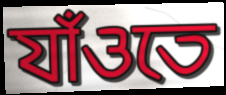
যাঁওতে